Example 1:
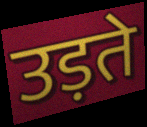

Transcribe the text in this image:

उड़ते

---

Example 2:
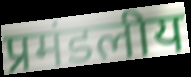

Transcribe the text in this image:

प्रमंडलीय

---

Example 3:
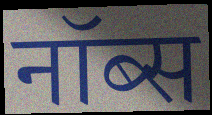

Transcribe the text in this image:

नॉब्स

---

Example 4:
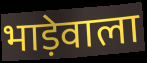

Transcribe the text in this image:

भाड़ेवाला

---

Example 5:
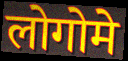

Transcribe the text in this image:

लोगोमे